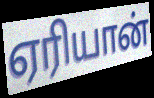
ஏரியான்